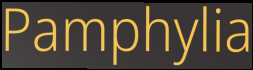
Pamphylia